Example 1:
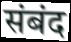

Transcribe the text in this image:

संबंद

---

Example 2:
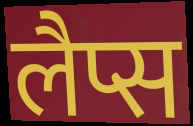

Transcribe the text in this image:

लैप्स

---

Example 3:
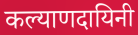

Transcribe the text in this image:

कल्याणदायिनी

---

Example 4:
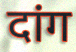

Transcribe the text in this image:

दांग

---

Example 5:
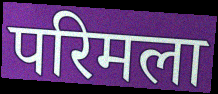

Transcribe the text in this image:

परिमला